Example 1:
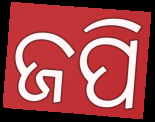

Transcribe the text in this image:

ଜପି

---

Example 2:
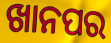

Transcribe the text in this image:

ଖାନପର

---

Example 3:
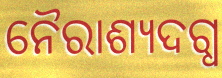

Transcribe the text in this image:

ନୈରାଶ୍ୟଦଗ୍ଧ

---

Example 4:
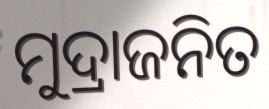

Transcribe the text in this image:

ମୁଦ୍ରାଜନିତ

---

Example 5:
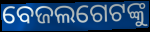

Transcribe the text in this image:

ବେଜଲଗେଟଙ୍କୁ